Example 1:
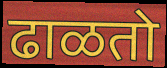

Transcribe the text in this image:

ढाळतो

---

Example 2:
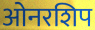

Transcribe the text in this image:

ओनरशिप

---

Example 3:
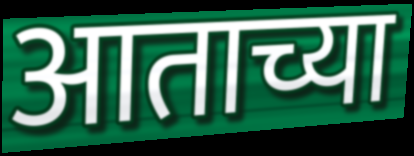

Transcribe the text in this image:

आताच्या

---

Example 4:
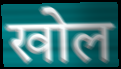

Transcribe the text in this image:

खोल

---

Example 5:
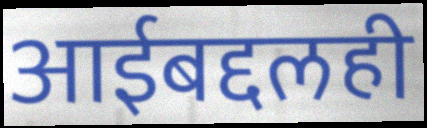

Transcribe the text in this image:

आईबद्दलही